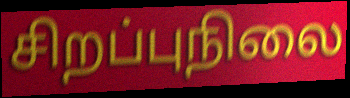
சிறப்புநிலை